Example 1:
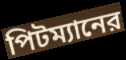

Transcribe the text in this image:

পিটম্যানের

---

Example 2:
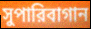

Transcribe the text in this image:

সুপারিবাগান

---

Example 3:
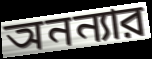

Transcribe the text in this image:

অনন্যার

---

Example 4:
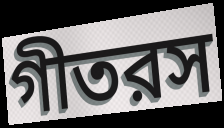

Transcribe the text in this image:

গীতরস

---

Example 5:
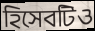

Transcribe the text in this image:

হিসেবটিও